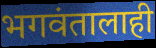
भगवंतालाही